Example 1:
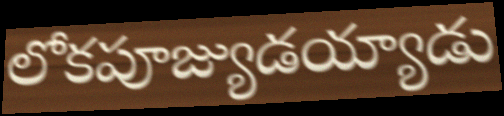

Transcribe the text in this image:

లోకపూజ్యుడయ్యాడు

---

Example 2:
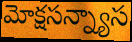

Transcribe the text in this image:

మోక్షసన్న్యాస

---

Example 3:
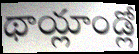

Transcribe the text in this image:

థాయ్లాండ్లో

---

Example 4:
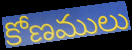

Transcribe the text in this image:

కోణములు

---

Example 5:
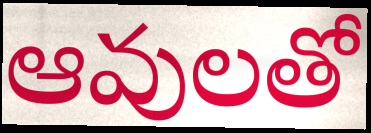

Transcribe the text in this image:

ఆవులతో